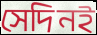
সেদিনই